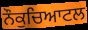
ਨੌਕੁਚਿਆਟਲ